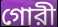
গোরী